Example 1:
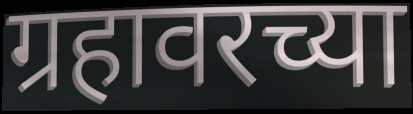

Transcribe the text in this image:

ग्रहावरच्या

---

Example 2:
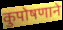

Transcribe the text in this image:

कुपोषणाने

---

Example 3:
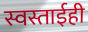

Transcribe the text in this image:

स्वस्ताईही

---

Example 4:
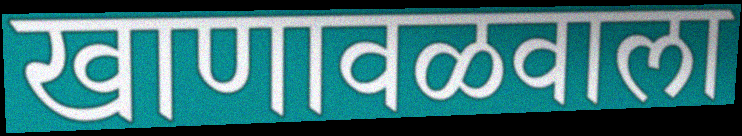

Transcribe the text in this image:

खाणावळवाला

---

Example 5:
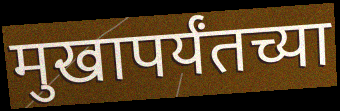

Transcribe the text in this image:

मुखापर्यंतच्या